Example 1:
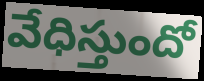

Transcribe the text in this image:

వేధిస్తుందో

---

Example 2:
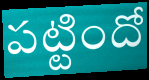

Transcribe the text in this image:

పట్టిందో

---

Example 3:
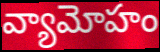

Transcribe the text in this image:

వ్యామోహం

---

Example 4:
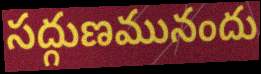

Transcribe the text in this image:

సద్గుణమునందు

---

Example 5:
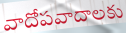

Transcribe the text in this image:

వాదోపవాదాలకు